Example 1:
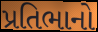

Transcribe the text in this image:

પ્રતિભાનો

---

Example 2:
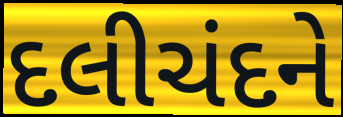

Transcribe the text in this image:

દલીચંદને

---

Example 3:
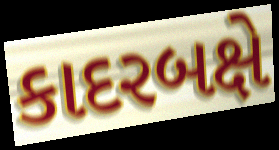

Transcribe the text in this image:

કાદરબક્ષે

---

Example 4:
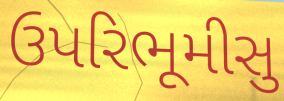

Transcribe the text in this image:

ઉપરિભૂમીસુ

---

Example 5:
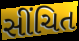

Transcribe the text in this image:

સીંચિત